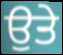
ਉਤੇ